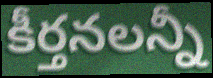
కీర్తనలన్నీ